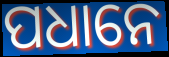
ପଧାନେ